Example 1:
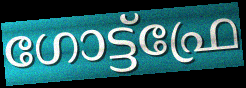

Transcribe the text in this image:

ഗോട്ട്ഫ്രേ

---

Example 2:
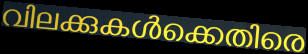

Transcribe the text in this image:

വിലക്കുകൾക്കെതിരെ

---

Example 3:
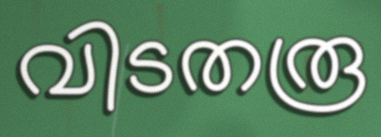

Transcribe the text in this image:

വിടതരൂ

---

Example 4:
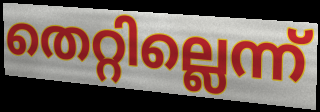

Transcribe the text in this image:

തെറ്റില്ലെന്ന്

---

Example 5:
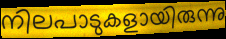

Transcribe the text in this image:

നിലപാടുകളായിരുന്നു